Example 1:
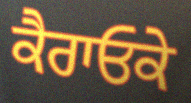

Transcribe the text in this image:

ਕੈਰਾਓਕੇ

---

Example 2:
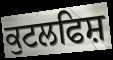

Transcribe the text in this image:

ਕੁਟਲਫਿਸ਼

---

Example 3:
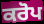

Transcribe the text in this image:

ਕਰੋਪ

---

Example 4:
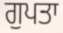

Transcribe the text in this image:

ਗੁਪਤਾ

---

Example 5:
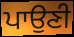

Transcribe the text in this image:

ਪਾਉਣੀ